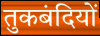
तुकबंदियों